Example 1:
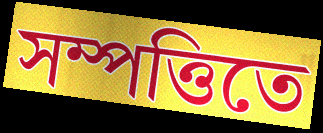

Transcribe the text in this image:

সম্পত্তিতে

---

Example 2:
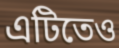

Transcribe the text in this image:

এটিতেও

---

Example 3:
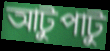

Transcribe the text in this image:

আটুপাটু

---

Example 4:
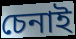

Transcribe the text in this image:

চেনাই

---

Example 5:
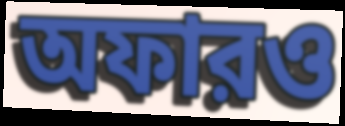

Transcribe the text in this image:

অফারও